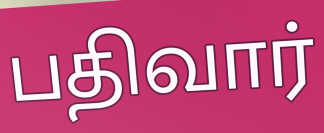
பதிவார்